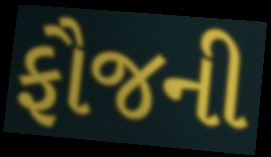
ફૌજની